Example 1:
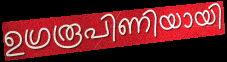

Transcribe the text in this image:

ഉഗ്രരൂപിണിയായി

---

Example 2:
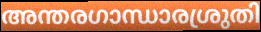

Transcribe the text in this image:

അന്തരഗാന്ധാരശ്രുതി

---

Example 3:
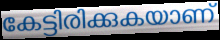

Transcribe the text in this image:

കേട്ടിരിക്കുകയാണ്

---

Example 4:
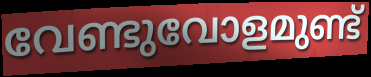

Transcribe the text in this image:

വേണ്ടുവോളമുണ്ട്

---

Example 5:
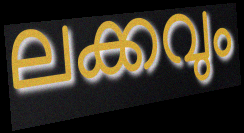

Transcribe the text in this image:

ലക്കവും